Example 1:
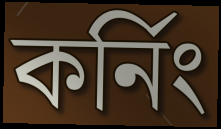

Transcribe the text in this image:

কর্নিং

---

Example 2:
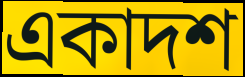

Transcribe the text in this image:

একাদশ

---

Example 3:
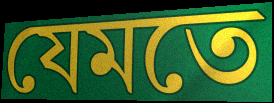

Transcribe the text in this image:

যেমতে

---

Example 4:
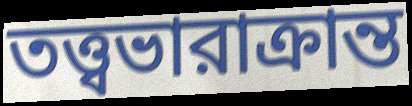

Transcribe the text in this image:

তত্ত্বভারাক্রান্ত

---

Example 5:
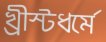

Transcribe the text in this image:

খ্রীস্টধর্মে